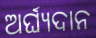
ଅର୍ଘ୍ୟଦାନ